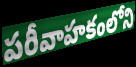
పరీవాహకంలోని